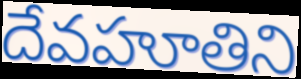
దేవహూతిని